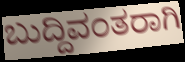
ಬುದ್ದಿವಂತರಾಗಿ